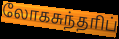
லோகசுந்தரிப்